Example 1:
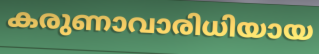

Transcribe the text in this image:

കരുണാവാരിധിയായ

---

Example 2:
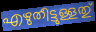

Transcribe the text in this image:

എഴുതീട്ടുള്ളതു്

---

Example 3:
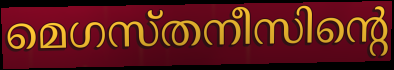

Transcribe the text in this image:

മെഗസ്തനീസിന്റെ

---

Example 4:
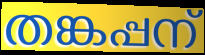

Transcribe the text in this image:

തങ്കപ്പന്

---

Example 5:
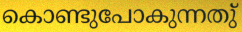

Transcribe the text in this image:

കൊണ്ടുപോകുന്നതു്